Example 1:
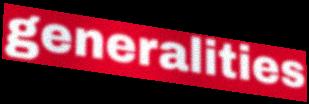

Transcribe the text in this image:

generalities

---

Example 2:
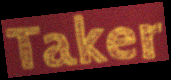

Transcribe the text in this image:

Taker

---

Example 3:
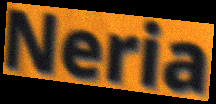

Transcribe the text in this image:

Neria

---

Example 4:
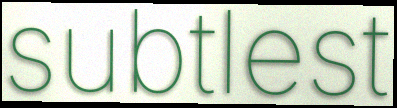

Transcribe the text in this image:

subtlest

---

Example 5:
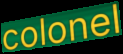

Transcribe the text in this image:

colonel